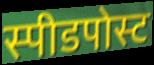
स्पीडपोस्ट